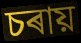
চৰায়